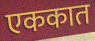
एककात